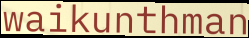
waikunthman